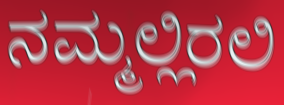
ನಮ್ಮಲ್ಲಿರಲಿ